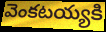
వెంకటయ్యకి